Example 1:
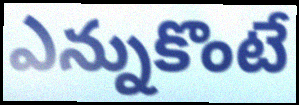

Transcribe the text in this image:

ఎన్నుకొంటే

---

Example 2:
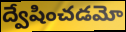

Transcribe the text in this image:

ద్వేషించడమో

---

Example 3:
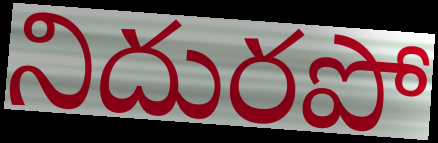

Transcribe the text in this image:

నిదురపో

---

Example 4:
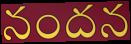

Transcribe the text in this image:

నందన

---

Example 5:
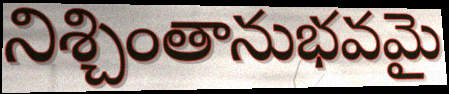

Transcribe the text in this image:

నిశ్చింతానుభవమై